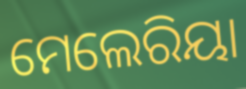
ମେଲେରିୟା